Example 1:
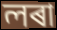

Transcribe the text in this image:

লৰা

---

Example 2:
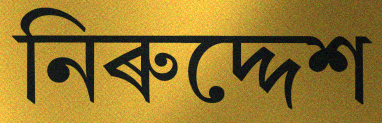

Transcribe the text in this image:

নিৰুদ্দেশ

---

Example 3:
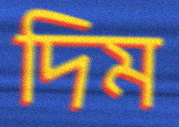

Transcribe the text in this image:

দিম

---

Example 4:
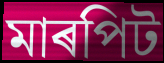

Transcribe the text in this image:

মাৰপিট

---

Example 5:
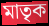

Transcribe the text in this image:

মাতৃক